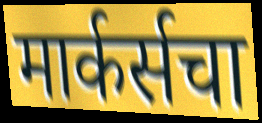
मार्कर्सचा